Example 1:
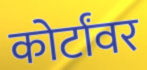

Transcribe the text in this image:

कोर्टांवर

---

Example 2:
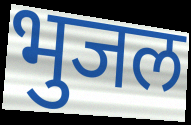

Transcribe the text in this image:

भुजल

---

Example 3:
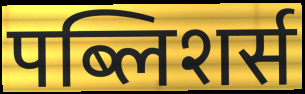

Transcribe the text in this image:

पब्लिशर्स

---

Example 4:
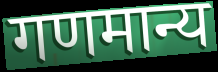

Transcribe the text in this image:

गणमान्य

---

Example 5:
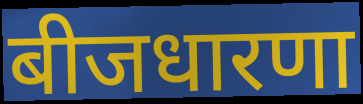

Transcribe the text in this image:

बीजधारणा